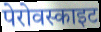
पेरोवस्काइट